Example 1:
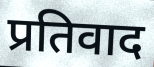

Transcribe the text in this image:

प्रतिवाद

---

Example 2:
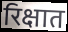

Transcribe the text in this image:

रिक्षात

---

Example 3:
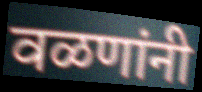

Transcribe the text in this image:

वळणांनी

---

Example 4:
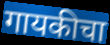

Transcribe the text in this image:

गायकीचा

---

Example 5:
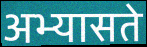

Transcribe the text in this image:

अभ्यासते